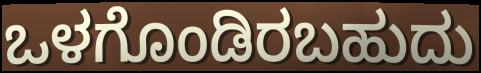
ಒಳಗೊಂಡಿರಬಹುದು